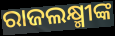
ରାଜଲକ୍ଷ୍ମୀଙ୍କ